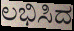
ಲಭಿಸಿದ